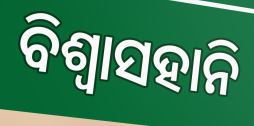
ବିଶ୍ବାସହାନି